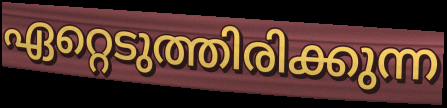
ഏറ്റെടുത്തിരിക്കുന്ന